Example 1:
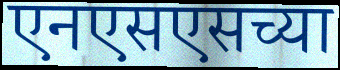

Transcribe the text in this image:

एनएसएसच्या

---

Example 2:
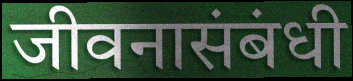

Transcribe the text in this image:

जीवनासंबंधी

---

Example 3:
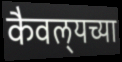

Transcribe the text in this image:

कैवल्यच्या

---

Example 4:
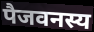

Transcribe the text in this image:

पैजवनस्य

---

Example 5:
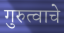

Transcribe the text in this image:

गुरुत्वाचे